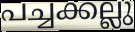
പച്ചക്കല്ലു